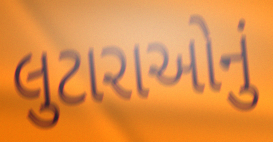
લુટારાઓનું